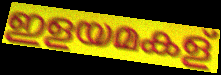
ഇളയമകള്